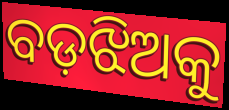
ବଡ଼ଝିଅକୁ